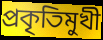
প্রকৃতিমুখী